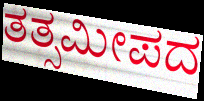
ತತ್ಸಮೀಪದ